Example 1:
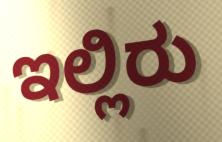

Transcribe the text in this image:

ಇಲ್ಲಿರು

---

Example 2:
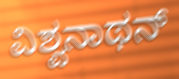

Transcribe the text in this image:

ವಿಶ್ವನಾಥನ್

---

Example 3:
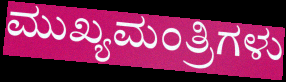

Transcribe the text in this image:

ಮುಖ್ಯಮಂತ್ರಿಗಳು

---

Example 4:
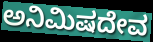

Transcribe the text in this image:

ಅನಿಮಿಷದೇವ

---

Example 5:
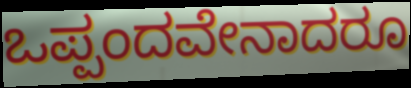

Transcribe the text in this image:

ಒಪ್ಪಂದವೇನಾದರೂ